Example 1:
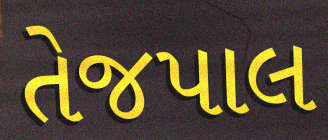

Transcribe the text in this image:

તેજપાલ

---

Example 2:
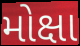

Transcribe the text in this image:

મોક્ષા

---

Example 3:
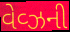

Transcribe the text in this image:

વેવ્ઝની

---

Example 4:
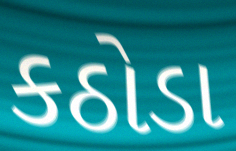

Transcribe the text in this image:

કઠોડા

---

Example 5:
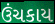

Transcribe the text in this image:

ઉંચકાય